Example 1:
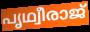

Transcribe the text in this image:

പൃഥ്വീരാജ്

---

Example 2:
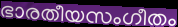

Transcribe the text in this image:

ഭാരതീയസംഗീതം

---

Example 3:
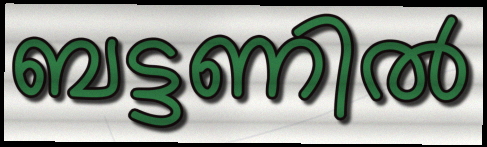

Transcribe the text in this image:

ബട്ടണിൽ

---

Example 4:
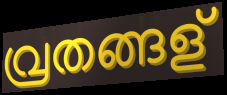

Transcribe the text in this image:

വ്രതങ്ങള്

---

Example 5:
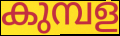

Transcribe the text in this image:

കുമ്പള